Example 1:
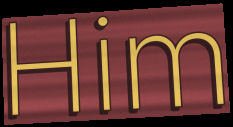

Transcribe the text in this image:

Him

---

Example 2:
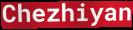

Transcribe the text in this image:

Chezhiyan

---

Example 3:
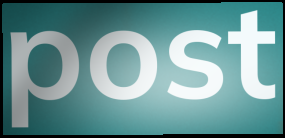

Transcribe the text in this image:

post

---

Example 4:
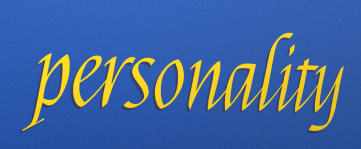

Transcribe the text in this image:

personality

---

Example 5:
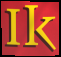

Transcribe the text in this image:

Ik